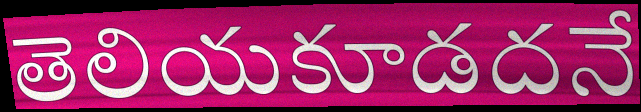
తెలియకూడదనే